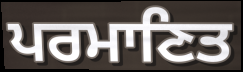
ਪਰਮਾਣਿਤ